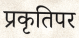
प्रकृतिपर